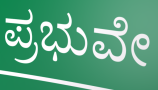
ಪ್ರಭುವೇ